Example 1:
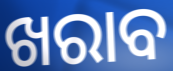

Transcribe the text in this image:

ଖରାବ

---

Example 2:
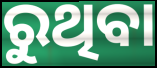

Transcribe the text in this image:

ରୁଥିବା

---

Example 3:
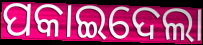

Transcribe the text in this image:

ପକାଇଦେଲା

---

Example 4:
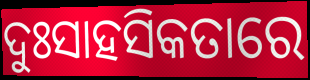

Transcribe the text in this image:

ଦୁଃସାହସିକତାରେ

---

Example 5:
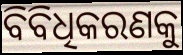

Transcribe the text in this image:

ବିବିଧିକରଣକୁ